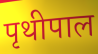
पृथीपाल